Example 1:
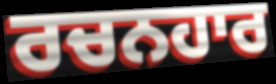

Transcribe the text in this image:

ਰਚਨਹਾਰ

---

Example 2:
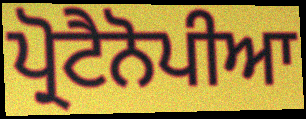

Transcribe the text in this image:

ਪ੍ਰੋਟੈਨੋਪੀਆ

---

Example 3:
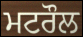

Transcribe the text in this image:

ਮਟਰੌਲ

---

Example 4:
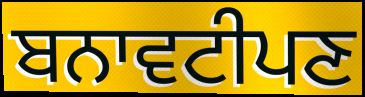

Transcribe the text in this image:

ਬਨਾਵਟੀਪਣ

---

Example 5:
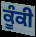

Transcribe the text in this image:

ਕੂੰਕੀ